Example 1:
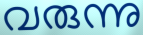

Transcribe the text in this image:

വരുന്നു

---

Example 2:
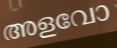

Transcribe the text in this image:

അളവോ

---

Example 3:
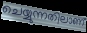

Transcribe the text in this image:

ചെയ്യുന്നതിലാണ്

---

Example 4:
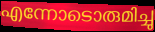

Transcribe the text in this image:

എന്നോടൊരുമിച്ചു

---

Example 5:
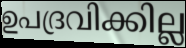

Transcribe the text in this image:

ഉപദ്രവിക്കില്ല